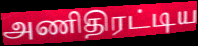
அணிதிரட்டிய